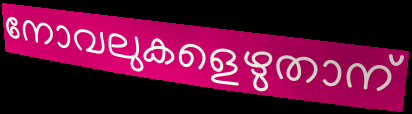
നോവലുകളെഴുതാന്